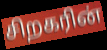
சிறகரின்